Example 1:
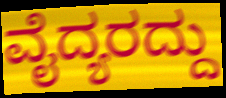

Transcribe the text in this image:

ವೈದ್ಯರದ್ದು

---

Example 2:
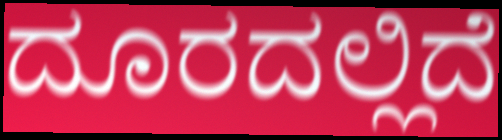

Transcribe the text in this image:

ದೂರದಲ್ಲಿದೆ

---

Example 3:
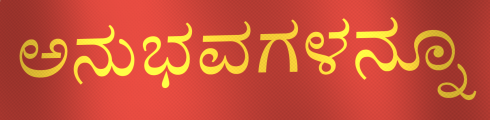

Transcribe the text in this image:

ಅನುಭವಗಳನ್ನೂ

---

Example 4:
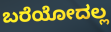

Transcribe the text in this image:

ಬರೆಯೋದಲ್ಲ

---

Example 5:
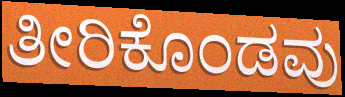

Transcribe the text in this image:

ತೀರಿಕೊಂಡವು